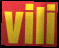
vili